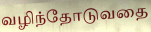
வழிந்தோடுவதை